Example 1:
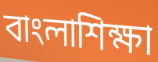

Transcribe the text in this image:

বাংলাশিক্ষা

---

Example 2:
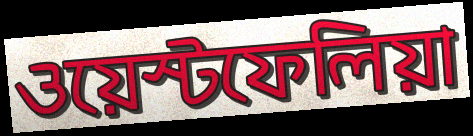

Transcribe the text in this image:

ওয়েস্টফেলিয়া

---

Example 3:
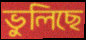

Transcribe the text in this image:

ভুলিছে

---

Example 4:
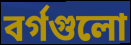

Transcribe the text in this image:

বর্গগুলো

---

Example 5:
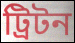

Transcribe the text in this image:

ট্রিটন